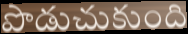
పొడుచుకుంది